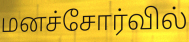
மனச்சோர்வில்